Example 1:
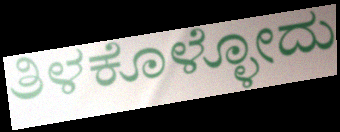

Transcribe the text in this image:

ತಿಳಕೊಳ್ಳೋದು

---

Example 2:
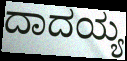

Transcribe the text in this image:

ದಾದಯ್ಯ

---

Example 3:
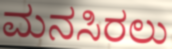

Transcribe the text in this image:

ಮನಸಿರಲು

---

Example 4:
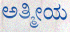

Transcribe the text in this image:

ಅತ್ಮೀಯ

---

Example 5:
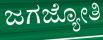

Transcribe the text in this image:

ಜಗಜ್ಯೋತಿ